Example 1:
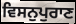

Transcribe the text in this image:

ਵਿਸਨੁਪੁਰਾਣ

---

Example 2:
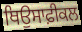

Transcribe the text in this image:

ਥਿਉਸਾਫ਼ੀਕਲ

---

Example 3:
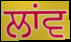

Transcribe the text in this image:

ਲਾਂਵ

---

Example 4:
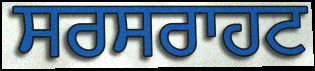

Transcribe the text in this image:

ਸਰਸਰਾਹਟ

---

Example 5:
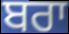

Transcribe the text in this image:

ਬਰਾ